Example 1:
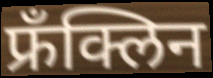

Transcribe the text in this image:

फ्रँक्लिन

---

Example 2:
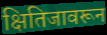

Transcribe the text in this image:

क्षितिजावरून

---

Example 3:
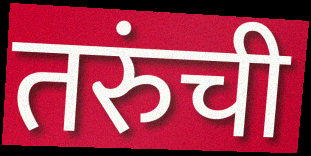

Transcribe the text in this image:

तरुंची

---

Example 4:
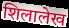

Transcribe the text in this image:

शिलालेख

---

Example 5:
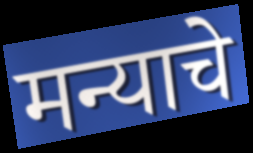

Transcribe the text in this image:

मन्याचे